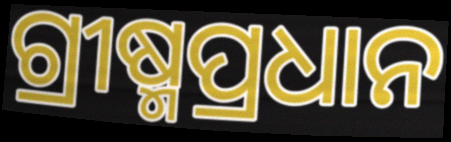
ଗ୍ରୀଷ୍ମପ୍ରଧାନ